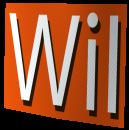
Wil